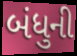
બંધુની